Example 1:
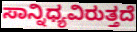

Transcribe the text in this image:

ಸಾನ್ನಿಧ್ಯವಿರುತ್ತದೆ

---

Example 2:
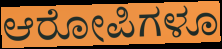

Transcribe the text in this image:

ಆರೋಪಿಗಳೂ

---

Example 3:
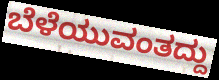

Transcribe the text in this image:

ಬೆಳೆಯುವಂತದ್ದು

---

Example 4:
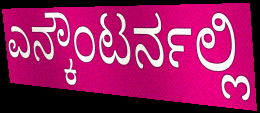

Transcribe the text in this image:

ಎನ್ಕೌಂಟರ್ನಲ್ಲಿ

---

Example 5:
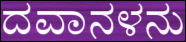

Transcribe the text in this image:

ದವಾನಳನು